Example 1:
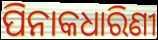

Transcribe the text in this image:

ପିନାକଧାରିଣୀ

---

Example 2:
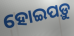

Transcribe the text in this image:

ହୋଇପଡ଼ୁ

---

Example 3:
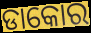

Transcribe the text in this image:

ଡାକୋର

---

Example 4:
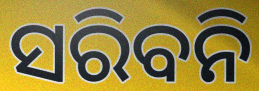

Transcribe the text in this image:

ସରିବନି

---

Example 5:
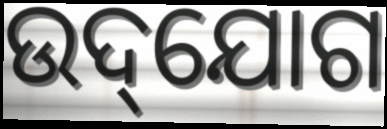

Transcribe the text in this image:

ଉଦ୍‌ଯୋଗ